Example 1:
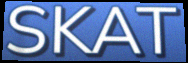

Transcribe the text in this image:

SKAT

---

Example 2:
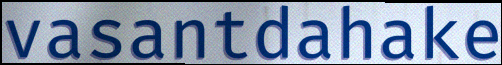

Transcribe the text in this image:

vasantdahake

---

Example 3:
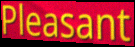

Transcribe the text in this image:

Pleasant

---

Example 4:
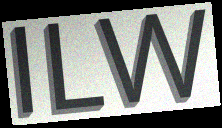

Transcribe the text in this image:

ILW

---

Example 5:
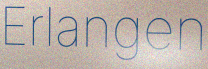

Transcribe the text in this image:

Erlangen